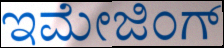
ಇಮೇಜಿಂಗ್